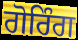
ਗੋਰਿੰਗ